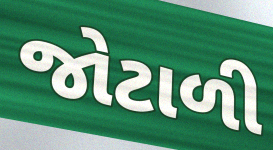
જોટાળી